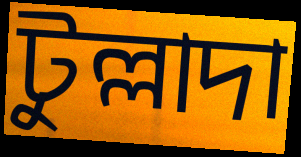
টুল্লাদা